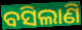
ବସିଲାଣି